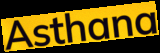
Asthana